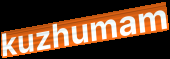
kuzhumam